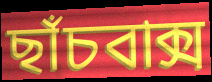
ছাঁচবাক্স